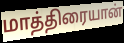
மாத்திரையான்